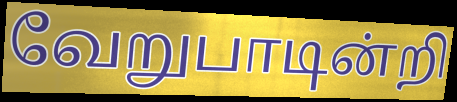
வேறுபாடின்றி